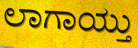
ಲಾಗಾಯ್ತು